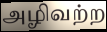
அழிவற்ற